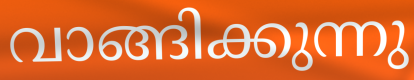
വാങ്ങിക്കുന്നു